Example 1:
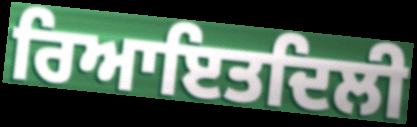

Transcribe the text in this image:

ਰਿਆਇਤਦਿਲੀ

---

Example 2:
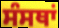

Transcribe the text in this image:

ਸੰਸਥਾਂ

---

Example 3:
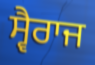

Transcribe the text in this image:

ਸ੍ਵੈਰਾਜ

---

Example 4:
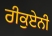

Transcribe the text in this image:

ਰੀਕੁਏਨੀ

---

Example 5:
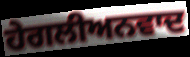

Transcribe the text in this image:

ਹੇਗਲੀਅਨਵਾਦ